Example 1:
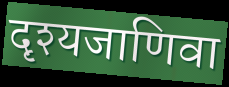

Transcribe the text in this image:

दृश्यजाणिवा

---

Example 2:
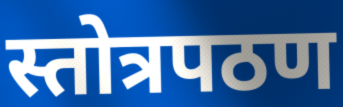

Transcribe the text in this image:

स्तोत्रपठण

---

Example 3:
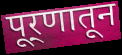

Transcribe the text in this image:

पूर्णातून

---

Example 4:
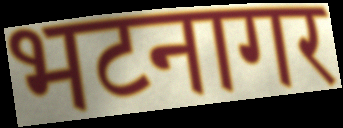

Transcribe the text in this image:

भटनागर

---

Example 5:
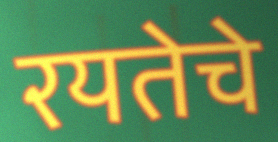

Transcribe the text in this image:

रयतेचे